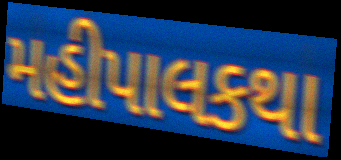
મહીપાલકથા